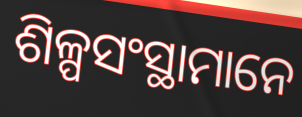
ଶିଳ୍ପସଂସ୍ଥାମାନେ